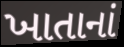
ખાતાનાં